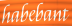
habebant